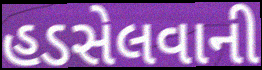
હડસેલવાની